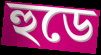
হুডে